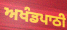
ਅਖੰਡਪਾਠੀ